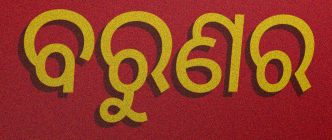
ବରୁଣର